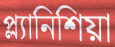
প্ল্যানিশিয়া